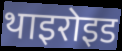
थाइरोइड